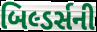
બિલ્ડર્સની